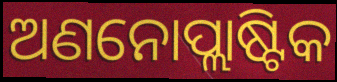
ଅଣନୋପ୍ଲାଷ୍ଟିକ